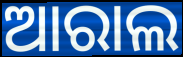
ଆରାଲ